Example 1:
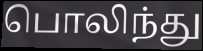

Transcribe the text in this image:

பொலிந்து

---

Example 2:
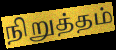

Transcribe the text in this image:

நிறுத்தம்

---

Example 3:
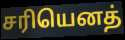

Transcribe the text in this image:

சரியெனத்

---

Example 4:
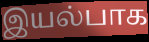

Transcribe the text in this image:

இயல்பாக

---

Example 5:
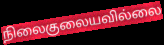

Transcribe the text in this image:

நிலைகுலையவில்லை